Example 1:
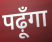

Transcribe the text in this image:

पढ़ूँगा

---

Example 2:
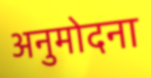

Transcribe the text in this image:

अनुमोदना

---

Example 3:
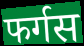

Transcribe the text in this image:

फर्गस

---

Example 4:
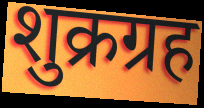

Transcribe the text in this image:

शुक्रग्रह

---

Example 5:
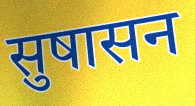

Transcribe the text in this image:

सुषासन